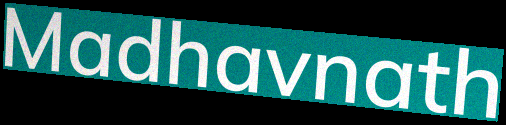
Madhavnath